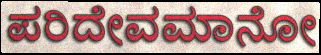
ಪರಿದೇವಮಾನೋ